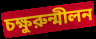
চক্ষুরুন্মীলন